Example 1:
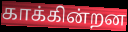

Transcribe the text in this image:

காக்கின்றன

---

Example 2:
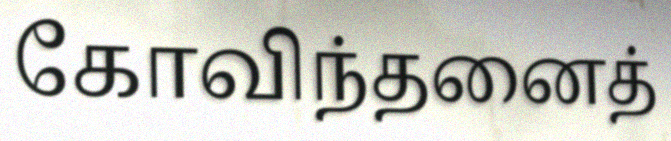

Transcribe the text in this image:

கோவிந்தனைத்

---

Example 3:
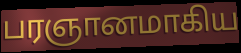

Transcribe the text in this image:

பரஞானமாகிய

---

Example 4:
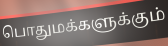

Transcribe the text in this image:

பொதுமக்களுக்கும்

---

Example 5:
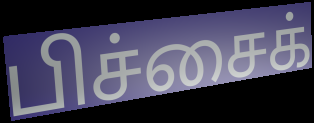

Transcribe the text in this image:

பிச்சைக்